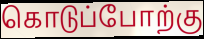
கொடுப்போற்கு